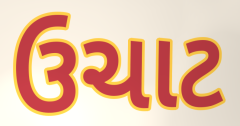
ઉચાટ